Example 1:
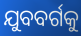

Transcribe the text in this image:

ଯୁବବର୍ଗକୁ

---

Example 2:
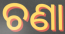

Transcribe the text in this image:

ଚଣା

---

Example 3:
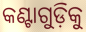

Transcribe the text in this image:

କଣ୍ଟାଗୁଡ଼ିକୁ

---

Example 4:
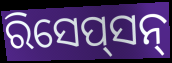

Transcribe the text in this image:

ରିସେପ୍‍ସନ୍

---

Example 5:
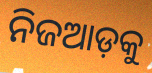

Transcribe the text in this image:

ନିଜଆଡ଼କୁ